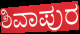
ಶಿವಾಪುರ